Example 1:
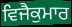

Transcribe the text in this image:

ਵਿਜੈਕੁਮਾਰ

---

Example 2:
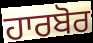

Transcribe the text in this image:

ਹਾਰਬੋਰ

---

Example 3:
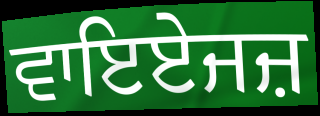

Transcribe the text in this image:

ਵਾਇਏਜਜ਼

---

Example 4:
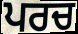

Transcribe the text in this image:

ਪਰਚ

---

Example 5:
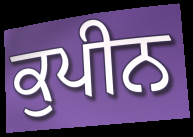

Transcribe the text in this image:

ਕੁਪੀਨ